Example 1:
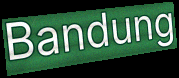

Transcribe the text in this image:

Bandung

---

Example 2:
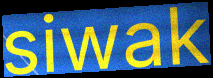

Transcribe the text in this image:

siwak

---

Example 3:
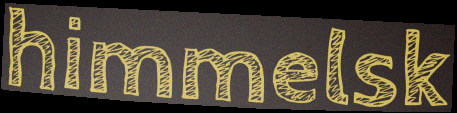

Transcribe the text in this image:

himmelsk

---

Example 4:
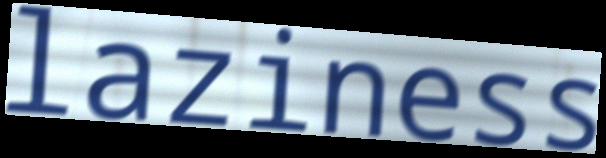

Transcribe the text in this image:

laziness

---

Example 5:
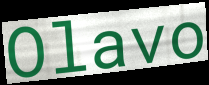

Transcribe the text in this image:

Olavo